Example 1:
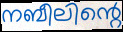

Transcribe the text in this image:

നബീലിന്റെ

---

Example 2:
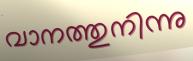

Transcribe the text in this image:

വാനത്തുനിന്നു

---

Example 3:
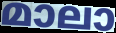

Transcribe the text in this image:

മാലാ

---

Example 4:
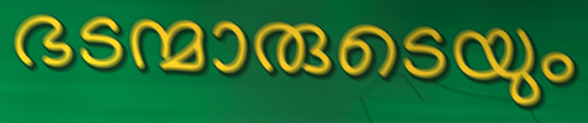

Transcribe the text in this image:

ഭടന്മാരുടെയും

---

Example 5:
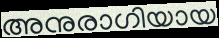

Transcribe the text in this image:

അനുരാഗിയായ